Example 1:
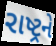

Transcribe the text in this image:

રાષ્ટ્રને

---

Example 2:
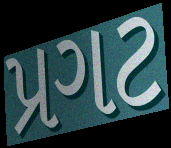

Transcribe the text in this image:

પ્રગટ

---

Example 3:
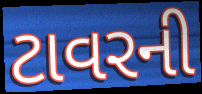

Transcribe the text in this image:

ટાવરની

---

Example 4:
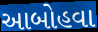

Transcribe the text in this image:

આબોહવા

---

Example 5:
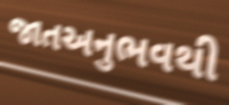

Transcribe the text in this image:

જાતઅનુભવથી